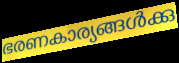
ഭരണകാര്യങ്ങൾക്കു